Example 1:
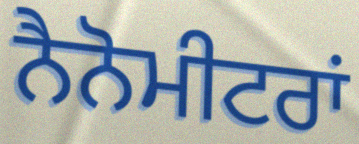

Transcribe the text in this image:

ਨੈਨੋਮੀਟਰਾਂ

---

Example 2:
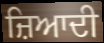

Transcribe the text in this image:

ਜ਼ਿਆਦੀ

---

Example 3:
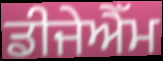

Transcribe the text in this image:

ਡੀਜੇਐੱਮ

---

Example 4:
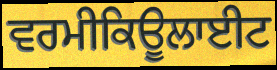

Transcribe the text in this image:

ਵਰਮੀਕਿਊਲਾਈਟ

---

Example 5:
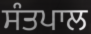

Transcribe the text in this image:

ਸੰਤਪਾਲ